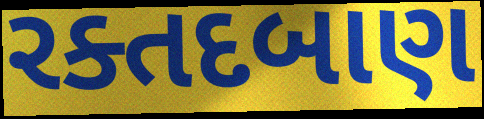
રક્તદબાણ